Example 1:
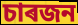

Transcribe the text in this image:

চাৰজন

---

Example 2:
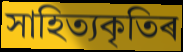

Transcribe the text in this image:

সাহিত্য়কৃতিৰ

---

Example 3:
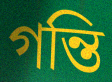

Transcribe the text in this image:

গন্তি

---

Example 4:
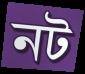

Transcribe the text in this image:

নট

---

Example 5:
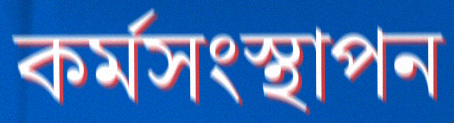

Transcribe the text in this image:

কৰ্মসংস্থাপন